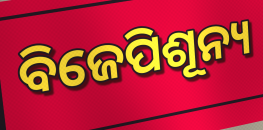
ବିଜେପିଶୂନ୍ୟ